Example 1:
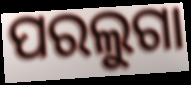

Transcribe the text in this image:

ପରଲୁଗା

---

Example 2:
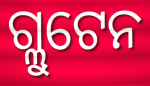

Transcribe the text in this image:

ଗ୍ଲୁଟେନ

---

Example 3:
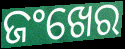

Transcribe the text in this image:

ଜଂଖେର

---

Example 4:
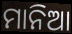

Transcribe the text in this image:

ମାନିଆ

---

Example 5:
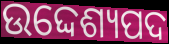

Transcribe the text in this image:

ଉଦ୍ଦେଶ୍ୟପଦ